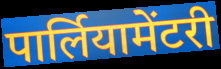
पार्लियामेंटरी